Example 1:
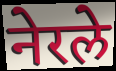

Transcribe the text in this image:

नेरले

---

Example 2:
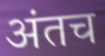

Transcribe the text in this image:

अंतच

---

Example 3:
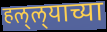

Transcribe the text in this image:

हल्ल्याच्या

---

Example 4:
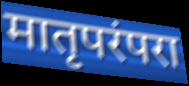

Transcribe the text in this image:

मातृपरंपरा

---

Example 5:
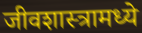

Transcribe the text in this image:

जीवशास्त्रामध्ये